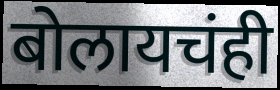
बोलायचंही